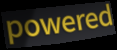
powered